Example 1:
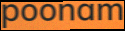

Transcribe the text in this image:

poonam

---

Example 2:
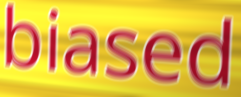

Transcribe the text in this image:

biased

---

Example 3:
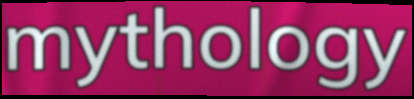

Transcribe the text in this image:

mythology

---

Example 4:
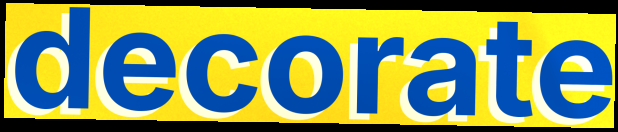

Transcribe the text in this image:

decorate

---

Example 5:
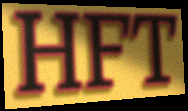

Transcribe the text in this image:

HFT